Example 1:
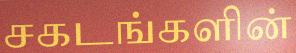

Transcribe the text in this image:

சகடங்களின்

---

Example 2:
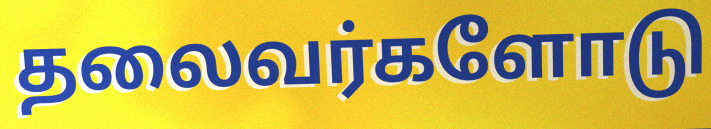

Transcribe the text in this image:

தலைவர்களோடு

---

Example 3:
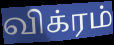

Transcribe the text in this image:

விக்ரம்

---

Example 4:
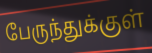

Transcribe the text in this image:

பேருந்துக்குள்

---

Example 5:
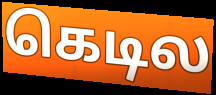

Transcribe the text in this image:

கெடில